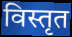
विस्तृत